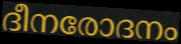
ദീനരോദനം